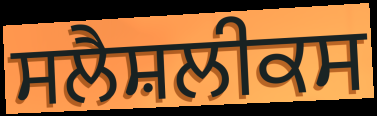
ਸਲੈਸ਼ਲੀਕਸ